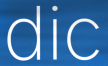
dic